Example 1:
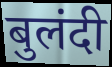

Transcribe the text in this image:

बुलंदी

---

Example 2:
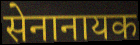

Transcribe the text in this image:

सेनानायक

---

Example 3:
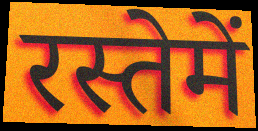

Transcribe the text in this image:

रस्तेमें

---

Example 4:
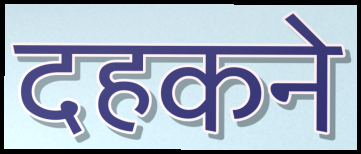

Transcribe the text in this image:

दहकने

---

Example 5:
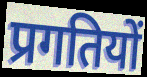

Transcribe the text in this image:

प्रगतियों